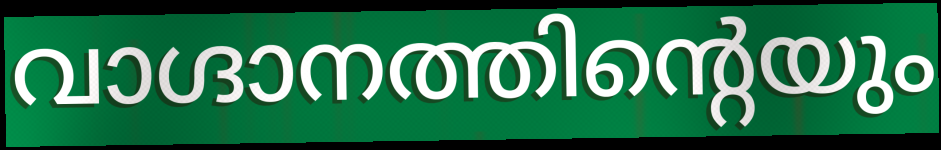
വാഗ്ദാനത്തിന്റെയും